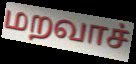
மறவாச்